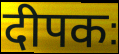
दीपकः